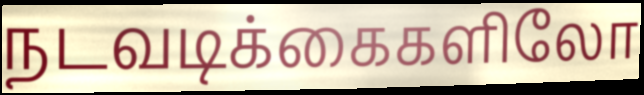
நடவடிக்கைகளிலோ